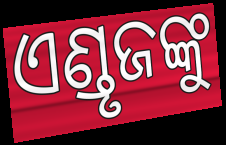
ଏଣ୍ଡୃଜଙ୍କୁ